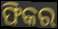
ଫିକର